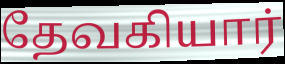
தேவகியார்